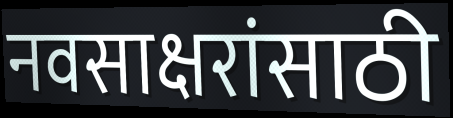
नवसाक्षरांसाठी